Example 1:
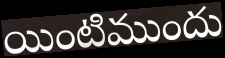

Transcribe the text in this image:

యింటిముందు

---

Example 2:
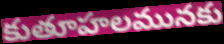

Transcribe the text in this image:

కుతూహలమునకు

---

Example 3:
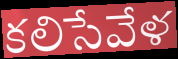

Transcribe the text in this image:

కలిసేవేళ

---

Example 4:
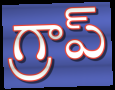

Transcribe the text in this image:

గ్రాప్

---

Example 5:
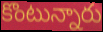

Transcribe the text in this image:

కొంటున్నారు